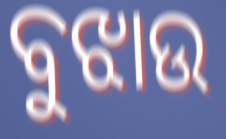
ବୁଝାଉ